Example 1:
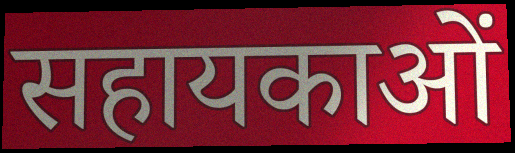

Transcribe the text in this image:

सहायकाओं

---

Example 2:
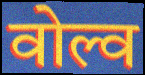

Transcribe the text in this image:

वोल्व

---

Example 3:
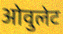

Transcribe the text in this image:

ओवुलेट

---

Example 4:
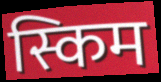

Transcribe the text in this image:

स्किम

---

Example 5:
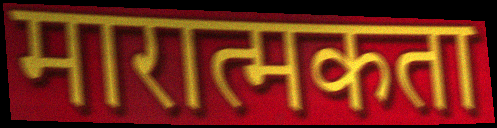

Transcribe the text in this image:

मारात्मकता